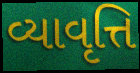
વ્યાવૃત્તિ